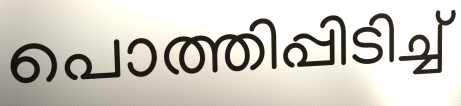
പൊത്തിപ്പിടിച്ച്